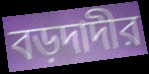
বড়দাদীর